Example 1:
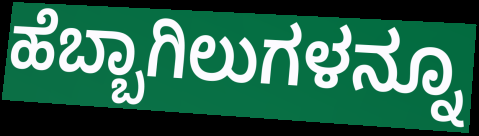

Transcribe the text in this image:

ಹೆಬ್ಬಾಗಿಲುಗಳನ್ನೂ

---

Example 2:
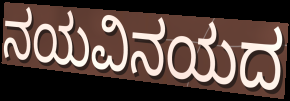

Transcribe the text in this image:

ನಯವಿನಯದ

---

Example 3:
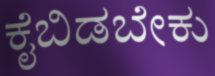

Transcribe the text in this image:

ಕೈಬಿಡಬೇಕು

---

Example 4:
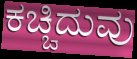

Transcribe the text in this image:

ಕಚ್ಚಿದುವು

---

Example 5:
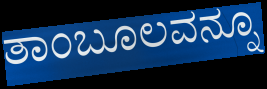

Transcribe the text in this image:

ತಾಂಬೂಲವನ್ನೂ